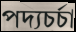
পদ্যচর্চা